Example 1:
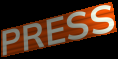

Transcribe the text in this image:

PRESS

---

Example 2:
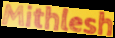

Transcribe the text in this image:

Mithlesh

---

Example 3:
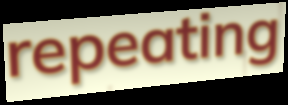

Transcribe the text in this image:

repeating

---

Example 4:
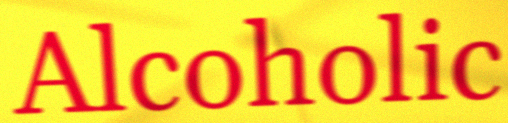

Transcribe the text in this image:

Alcoholic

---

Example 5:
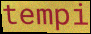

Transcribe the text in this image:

tempi